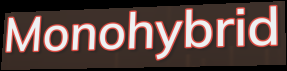
Monohybrid